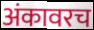
अंकावरच